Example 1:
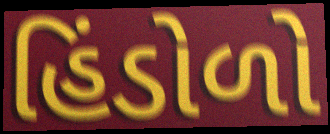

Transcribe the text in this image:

હિંડોળો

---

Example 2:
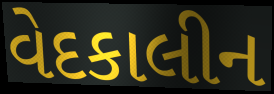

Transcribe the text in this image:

વેદકાલીન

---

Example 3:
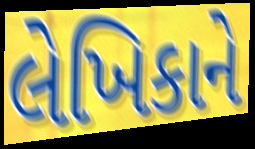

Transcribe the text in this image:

લેખિકાને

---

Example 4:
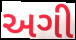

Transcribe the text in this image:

અગી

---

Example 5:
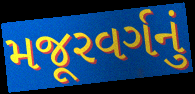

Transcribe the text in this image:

મજૂરવર્ગનું